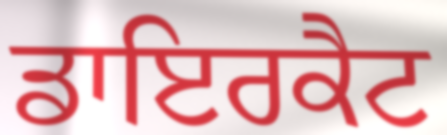
ਡਾਇਰਕੈਟ